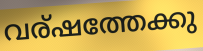
വര്ഷത്തേക്കു